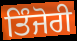
ਤਿੰਜੋਰੀ